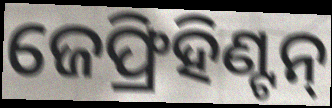
ଜେଫ୍ରିହିଣ୍ଟନ୍